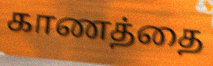
காணத்தை